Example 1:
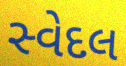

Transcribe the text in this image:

સ્વેદલ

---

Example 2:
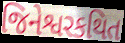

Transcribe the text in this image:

જિનેશ્વરકથિત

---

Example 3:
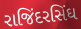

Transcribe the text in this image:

રાજિંદરસિંઘ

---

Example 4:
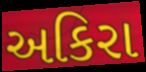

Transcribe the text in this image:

અકિરા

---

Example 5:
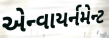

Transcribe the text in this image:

એન્વાયર્નમેન્ટ